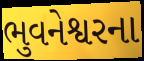
ભુવનેશ્વરના